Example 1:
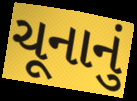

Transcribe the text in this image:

ચૂનાનું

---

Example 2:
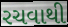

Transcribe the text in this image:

રચવાથી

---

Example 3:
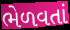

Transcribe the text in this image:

ભેળવતાં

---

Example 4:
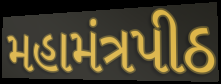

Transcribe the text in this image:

મહામંત્રપીઠ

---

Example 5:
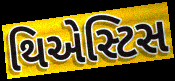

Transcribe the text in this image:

થિએસ્ટિસ